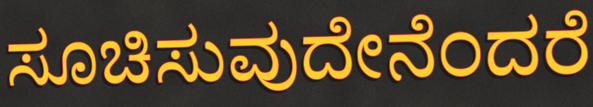
ಸೂಚಿಸುವುದೇನೆಂದರೆ